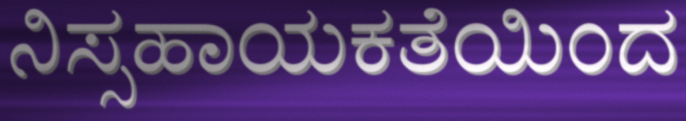
ನಿಸ್ಸಹಾಯಕತೆಯಿಂದ